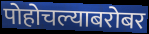
पोहोचल्याबरोबर